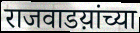
राजवाडय़ांच्या